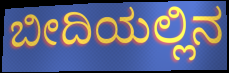
ಬೀದಿಯಲ್ಲಿನ